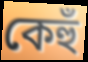
কেহুঁ